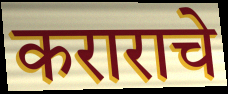
कराराचे